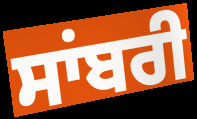
ਸਾਂਬਰੀ